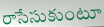
రాసేసుకుంటూ